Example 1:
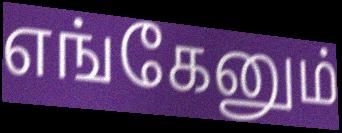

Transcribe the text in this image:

எங்கேனும்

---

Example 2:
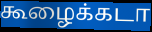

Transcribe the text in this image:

கூழைக்கடா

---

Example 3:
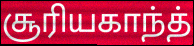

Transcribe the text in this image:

சூரியகாந்த்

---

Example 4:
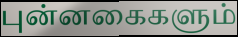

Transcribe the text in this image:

புன்னகைகளும்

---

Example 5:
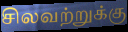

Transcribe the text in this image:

சிலவற்றுக்கு